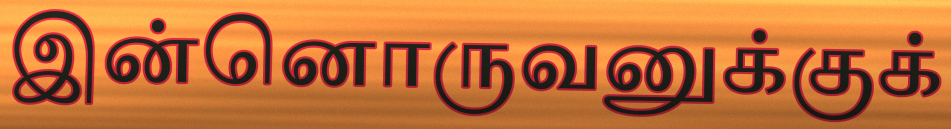
இன்னொருவனுக்குக்